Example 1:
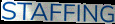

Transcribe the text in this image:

STAFFING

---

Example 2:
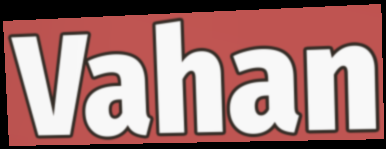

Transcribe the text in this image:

Vahan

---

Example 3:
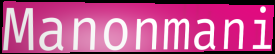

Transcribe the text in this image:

Manonmani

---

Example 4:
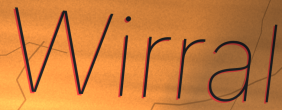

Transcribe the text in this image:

Wirral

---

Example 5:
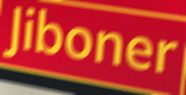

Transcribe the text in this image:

Jiboner